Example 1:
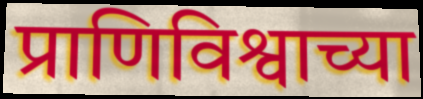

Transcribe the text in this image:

प्राणिविश्वाच्या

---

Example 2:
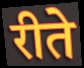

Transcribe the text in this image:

रीते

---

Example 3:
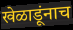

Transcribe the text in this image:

खेळाडूंनाच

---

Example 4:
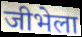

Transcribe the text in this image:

जीभेला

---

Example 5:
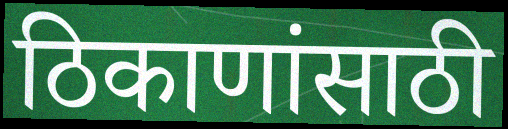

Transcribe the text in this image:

ठिकाणांसाठी